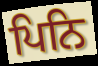
ਪਿਨਿ